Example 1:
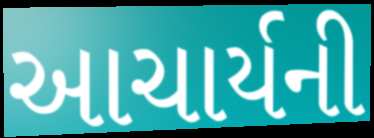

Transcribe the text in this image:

આચાર્યની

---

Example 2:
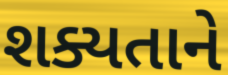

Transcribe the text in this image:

શક્યતાને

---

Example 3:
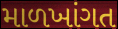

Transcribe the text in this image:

માળખાંગત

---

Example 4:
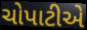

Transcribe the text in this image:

ચોપાટીએ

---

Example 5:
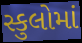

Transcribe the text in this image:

સ્કુલોમાં